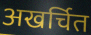
अखर्चित